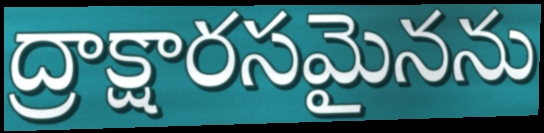
ద్రాక్షారసమైనను